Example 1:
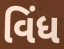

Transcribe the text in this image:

વિંધ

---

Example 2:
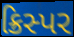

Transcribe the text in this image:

ક્રિસ્પર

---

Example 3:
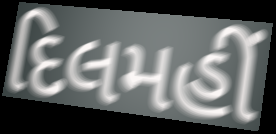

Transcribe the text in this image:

દિલમહીં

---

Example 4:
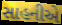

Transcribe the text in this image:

સાહનીએ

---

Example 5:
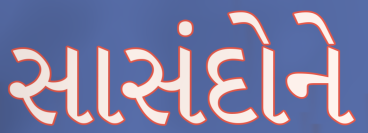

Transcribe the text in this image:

સાસંદોને